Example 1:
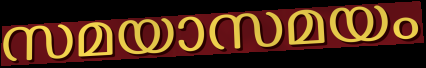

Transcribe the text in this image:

സമയാസമയം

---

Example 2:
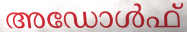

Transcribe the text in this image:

അഡോൾഫ്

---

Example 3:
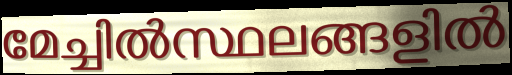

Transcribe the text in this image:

മേച്ചിൽസ്ഥലങ്ങളിൽ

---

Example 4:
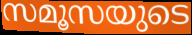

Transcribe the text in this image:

സമൂസയുടെ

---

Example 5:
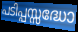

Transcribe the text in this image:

പടിപ്പസ്സദ്ധോ